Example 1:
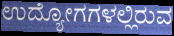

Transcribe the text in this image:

ಉದ್ಯೋಗಗಳಲ್ಲಿರುವ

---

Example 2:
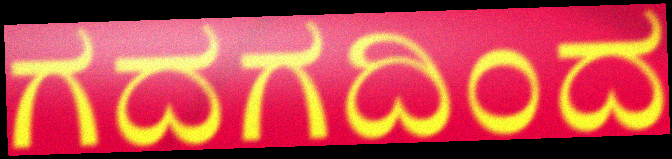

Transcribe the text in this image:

ಗದಗದಿಂದ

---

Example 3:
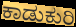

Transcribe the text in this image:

ಕಾಡುಕುರಿ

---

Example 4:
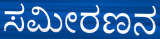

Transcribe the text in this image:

ಸಮೀರಣನ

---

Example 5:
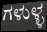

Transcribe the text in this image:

ಗಳುಳ್ಳ